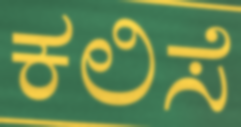
ಕಲಿಸೆ